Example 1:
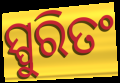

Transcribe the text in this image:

ସ୍ପୁରିତଂ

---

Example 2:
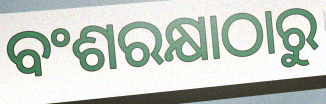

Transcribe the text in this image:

ବଂଶରକ୍ଷାଠାରୁ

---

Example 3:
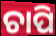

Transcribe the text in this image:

ଚାପି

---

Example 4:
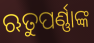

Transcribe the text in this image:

ଋତୁପର୍ଣ୍ଣାଙ୍କ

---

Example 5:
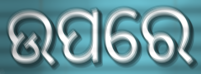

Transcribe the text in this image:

ଉପରେ